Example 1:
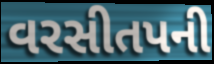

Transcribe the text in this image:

વરસીતપની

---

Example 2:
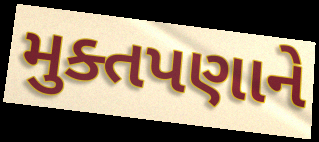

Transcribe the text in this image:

મુક્તપણાને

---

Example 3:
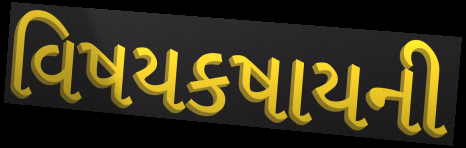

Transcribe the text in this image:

વિષયકષાયની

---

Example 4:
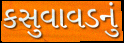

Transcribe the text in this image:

કસુવાવડનું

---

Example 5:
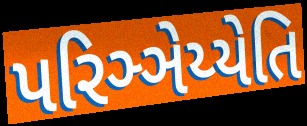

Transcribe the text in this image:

પરિઞ્ઞેય્યેતિ